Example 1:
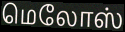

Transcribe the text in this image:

மெலோஸ்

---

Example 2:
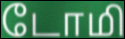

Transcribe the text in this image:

டோமி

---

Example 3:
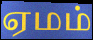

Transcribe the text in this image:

ஏமம்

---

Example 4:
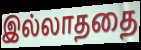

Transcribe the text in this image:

இல்லாததை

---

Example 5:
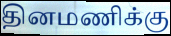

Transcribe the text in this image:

தினமணிக்கு